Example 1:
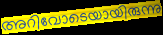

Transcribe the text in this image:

അറിവോടെയായിരുന്നു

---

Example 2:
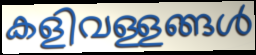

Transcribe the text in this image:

കളിവള്ളങ്ങൾ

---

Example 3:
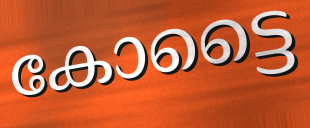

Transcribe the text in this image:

കോട്ടൈ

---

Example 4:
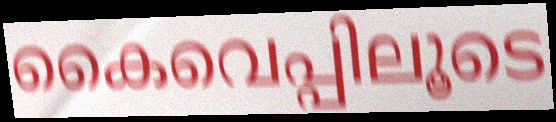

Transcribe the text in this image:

കൈവെപ്പിലൂടെ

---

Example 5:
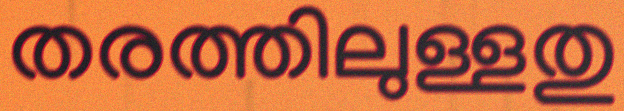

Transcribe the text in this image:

തരത്തിലുള്ളതു